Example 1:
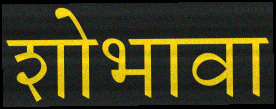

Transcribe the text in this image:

शोभावा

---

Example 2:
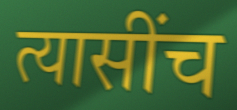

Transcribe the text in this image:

त्यासींच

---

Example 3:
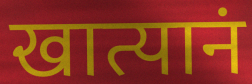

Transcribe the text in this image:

खात्यानं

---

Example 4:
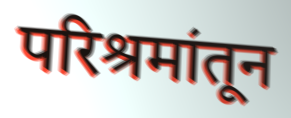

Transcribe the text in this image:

परिश्रमांतून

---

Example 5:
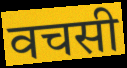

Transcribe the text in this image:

वचसी